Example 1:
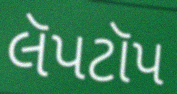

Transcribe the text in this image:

લૅપટૉપ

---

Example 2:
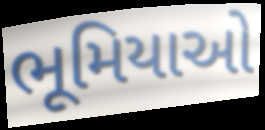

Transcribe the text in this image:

ભૂમિયાઓ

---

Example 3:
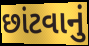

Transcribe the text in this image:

છાંટવાનું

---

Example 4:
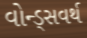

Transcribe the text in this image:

વોન્ડ્સવર્થ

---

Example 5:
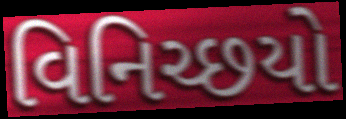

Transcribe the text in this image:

વિનિચ્છયો